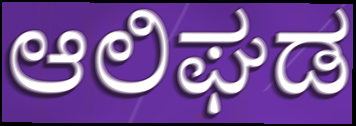
ಆಲಿಘಡ